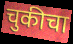
चुकीचा